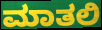
ಮಾತಲಿ